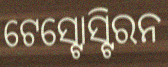
ଟେସ୍ଟୋସ୍ଟିରନ